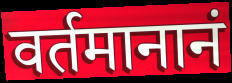
वर्तमानानं